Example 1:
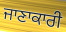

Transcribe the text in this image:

ਜਾਣਾਕਾਰੀ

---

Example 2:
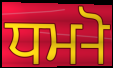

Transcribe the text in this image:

ਧਮ੍ਮੋ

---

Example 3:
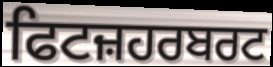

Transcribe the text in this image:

ਫਿਟਜ਼ਹਰਬਰਟ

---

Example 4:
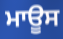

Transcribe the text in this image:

ਮਾਊਸ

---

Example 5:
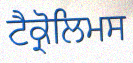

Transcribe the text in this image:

ਟੈਕ੍ਰੋਲਿਮਸ